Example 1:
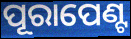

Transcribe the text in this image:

ପୂରାପେଣ୍ଟ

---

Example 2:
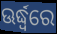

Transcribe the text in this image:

ଊର୍ଦ୍ଧ୍ୱରେ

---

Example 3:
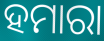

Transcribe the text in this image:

ହମାରା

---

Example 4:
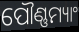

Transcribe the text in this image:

ପୌଣ୍ଣମ୍ୟାଂ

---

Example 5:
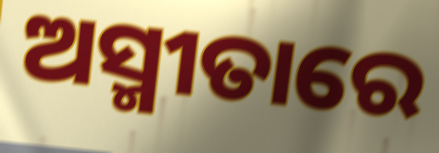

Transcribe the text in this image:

ଅସ୍ମୀତାରେ